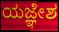
ಯಜ್ಞೇಶ